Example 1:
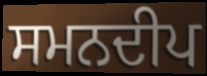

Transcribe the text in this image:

ਸਮਨਦੀਪ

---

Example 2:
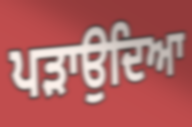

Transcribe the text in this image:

ਪੜਾਉਦਿਆ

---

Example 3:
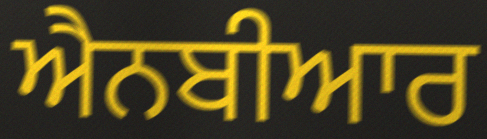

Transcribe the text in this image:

ਐਨਬੀਆਰ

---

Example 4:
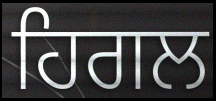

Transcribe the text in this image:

ਹਿਗਲ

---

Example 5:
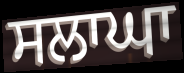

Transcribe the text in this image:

ਸਲਾਘਾ